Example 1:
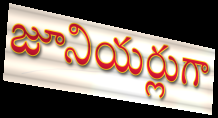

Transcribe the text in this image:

జూనియర్లుగా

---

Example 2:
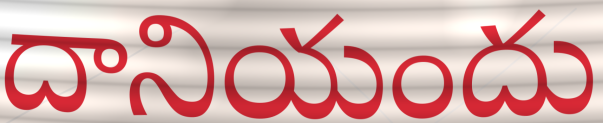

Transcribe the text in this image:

దానియందు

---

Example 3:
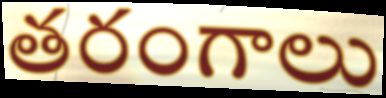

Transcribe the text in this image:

తరంగాలు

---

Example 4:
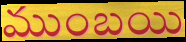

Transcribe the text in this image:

ముంబయి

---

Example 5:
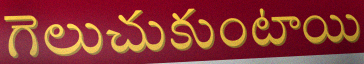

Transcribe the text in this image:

గెలుచుకుంటాయి